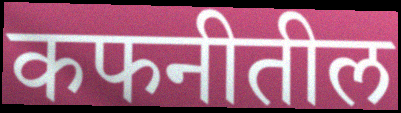
कफनीतील